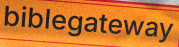
biblegateway